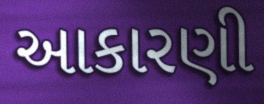
આકારણી